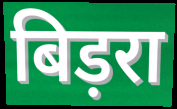
बिड़रा